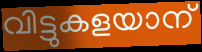
വിട്ടുകളയാന്